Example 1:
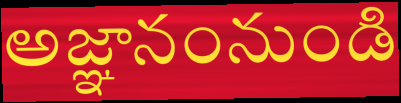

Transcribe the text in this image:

అజ్ఞానంనుండి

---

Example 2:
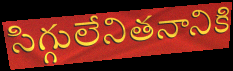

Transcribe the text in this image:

సిగ్గులేనితనానికి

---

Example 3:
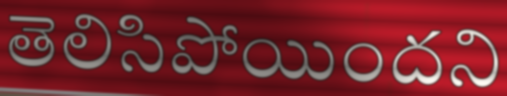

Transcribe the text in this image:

తెలిసిపోయిందని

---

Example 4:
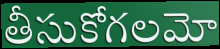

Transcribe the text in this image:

తీసుకోగలమో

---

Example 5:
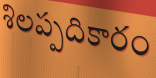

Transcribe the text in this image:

శిలప్పదికారం